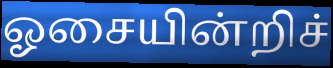
ஓசையின்றிச்